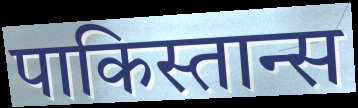
पाकिस्तान्स